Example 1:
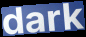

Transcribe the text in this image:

dark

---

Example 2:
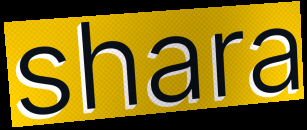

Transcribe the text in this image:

shara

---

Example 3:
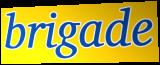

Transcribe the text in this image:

brigade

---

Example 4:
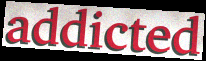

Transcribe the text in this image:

addicted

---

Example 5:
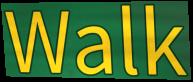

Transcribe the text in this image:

Walk